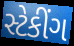
સ્ટેકીંગ